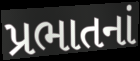
પ્રભાતનાં